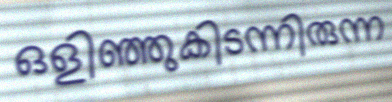
ഒളിഞ്ഞുകിടന്നിരുന്ന